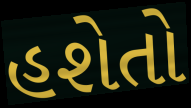
હશેતો